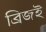
ব্রিজই